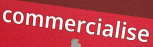
commercialise